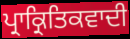
ਪ੍ਰਾਕ੍ਰਿਤਿਕਵਾਦੀ